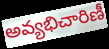
అవ్యభిచారిణీ